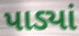
પાડ્યાં